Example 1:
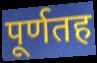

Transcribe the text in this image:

पूर्णतह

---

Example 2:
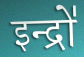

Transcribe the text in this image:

इन्द्रो॑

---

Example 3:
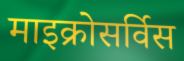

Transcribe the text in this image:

माइक्रोसर्विस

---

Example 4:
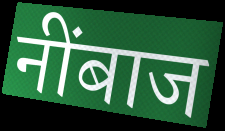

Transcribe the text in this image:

नींबाज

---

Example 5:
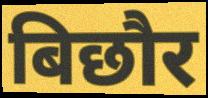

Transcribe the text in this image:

बिछौर